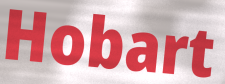
Hobart